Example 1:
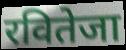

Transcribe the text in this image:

रवितेजा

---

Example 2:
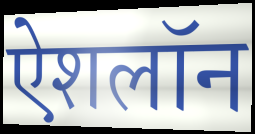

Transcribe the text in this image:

ऐशलॉन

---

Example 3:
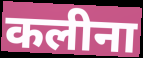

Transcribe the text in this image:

कलीना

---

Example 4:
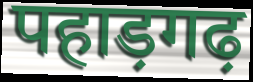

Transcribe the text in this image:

पहाड़गढ़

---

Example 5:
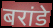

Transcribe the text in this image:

बरांडे